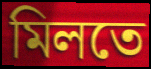
মিলতে